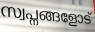
സ്വപ്നങ്ങളോട്